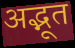
अद्भूत